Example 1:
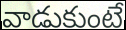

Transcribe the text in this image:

వాడుకుంటే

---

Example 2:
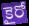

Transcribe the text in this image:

కైరో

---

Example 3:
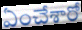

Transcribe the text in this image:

ఏంచేశారో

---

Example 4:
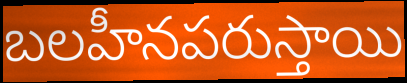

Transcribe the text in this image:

బలహీనపరుస్తాయి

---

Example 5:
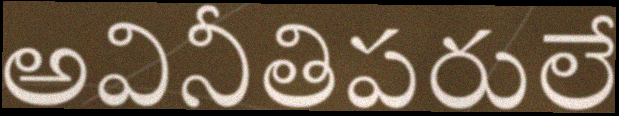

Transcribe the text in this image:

అవినీతిపరులే